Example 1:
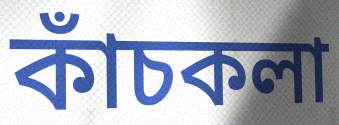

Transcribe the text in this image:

কাঁচকলা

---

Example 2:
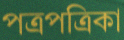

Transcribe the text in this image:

পত্রপত্রিকা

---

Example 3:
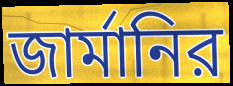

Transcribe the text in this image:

জার্মানির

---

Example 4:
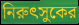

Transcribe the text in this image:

নিরুৎসুকের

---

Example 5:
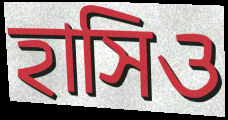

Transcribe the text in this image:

হাসিও